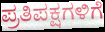
ಪ್ರತಿಪಕ್ಷಗಳಿಗೆ